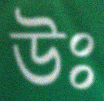
উঃ